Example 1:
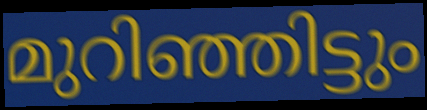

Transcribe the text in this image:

മുറിഞ്ഞിട്ടും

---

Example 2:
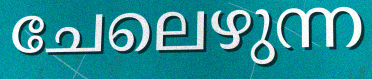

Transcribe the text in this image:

ചേലെഴുന്ന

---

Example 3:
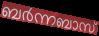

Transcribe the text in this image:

ബർന്നബാസ്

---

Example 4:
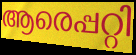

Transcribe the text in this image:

ആരെപ്പറ്റി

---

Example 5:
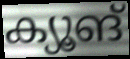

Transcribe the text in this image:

ക്യൂങ്